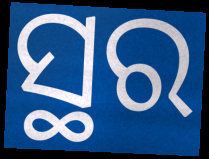
ସ୍ଥର